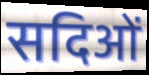
सदिओं